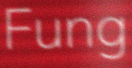
Fung